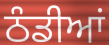
ਠੰਡੀਆਂ